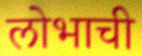
लोभाची